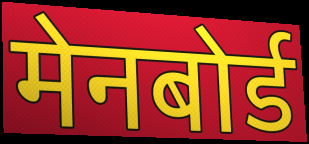
मेनबोर्ड